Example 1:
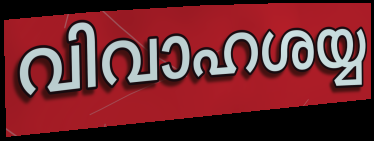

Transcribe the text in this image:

വിവാഹശയ്യ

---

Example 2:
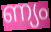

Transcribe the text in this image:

ണ്യം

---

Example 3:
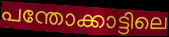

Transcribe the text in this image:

പന്തോക്കാട്ടിലെ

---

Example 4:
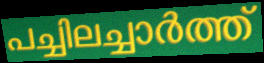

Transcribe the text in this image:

പച്ചിലച്ചാർത്ത്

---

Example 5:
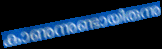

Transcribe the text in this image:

കാണുന്നുണ്ടായിരുന്നു